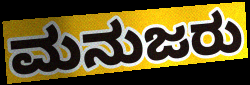
ಮನುಜರು